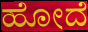
ಹೋದೆ